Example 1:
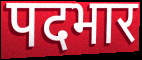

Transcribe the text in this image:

पदभार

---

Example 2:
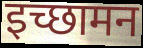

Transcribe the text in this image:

इच्छामन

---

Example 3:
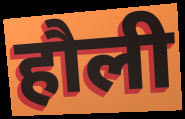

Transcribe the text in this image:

हौली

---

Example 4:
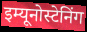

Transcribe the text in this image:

इम्यूनोस्टेनिंग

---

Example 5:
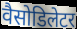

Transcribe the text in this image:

वैसोडिलेटर